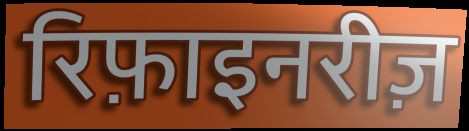
रिफ़ाइनरीज़